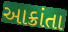
આક્રાંતા